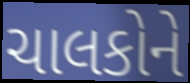
ચાલકોને